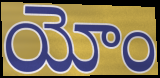
యోం